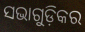
ସଭାଗୁଡ଼ିକର